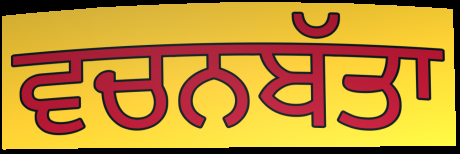
ਵਚਨਬੱਤਾ